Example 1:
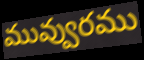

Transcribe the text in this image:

మువ్వురము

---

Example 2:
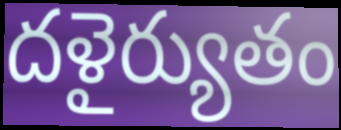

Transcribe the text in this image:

దళైర్యుతం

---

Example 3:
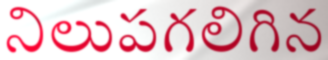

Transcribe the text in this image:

నిలుపగలిగిన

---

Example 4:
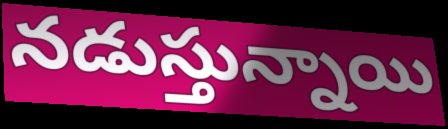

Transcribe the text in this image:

నడుస్తున్నాయి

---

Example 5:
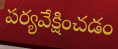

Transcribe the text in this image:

పర్యవేక్షించడం